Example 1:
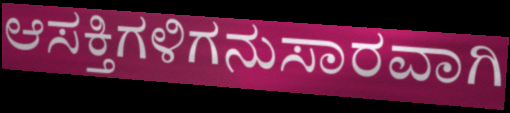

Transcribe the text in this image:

ಆಸಕ್ತಿಗಳಿಗನುಸಾರವಾಗಿ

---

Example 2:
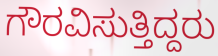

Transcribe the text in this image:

ಗೌರವಿಸುತ್ತಿದ್ದರು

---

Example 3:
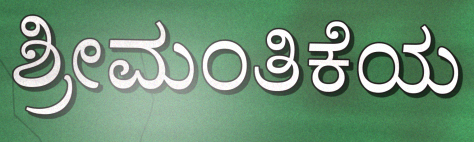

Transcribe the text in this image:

ಶ್ರೀಮಂತಿಕೆಯ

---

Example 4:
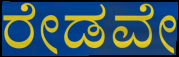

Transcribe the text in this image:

ರೇಡವೇ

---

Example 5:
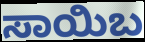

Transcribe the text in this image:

ಸಾಯಿಬ